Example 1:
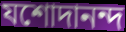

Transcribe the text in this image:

যশোদানন্দ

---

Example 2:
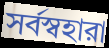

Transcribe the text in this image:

সর্বস্বহারা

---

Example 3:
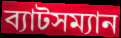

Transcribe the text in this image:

ব্যাটসম্যান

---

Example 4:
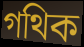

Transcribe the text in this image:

গথিক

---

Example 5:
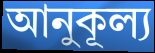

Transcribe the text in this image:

আনুকূল্য